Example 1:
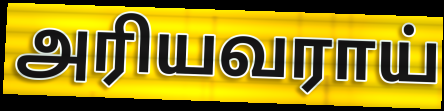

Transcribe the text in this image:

அரியவராய்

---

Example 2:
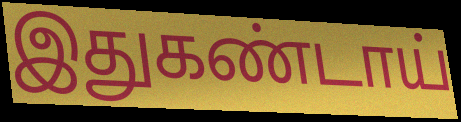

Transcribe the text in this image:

இதுகண்டாய்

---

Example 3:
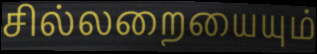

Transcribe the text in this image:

சில்லறையையும்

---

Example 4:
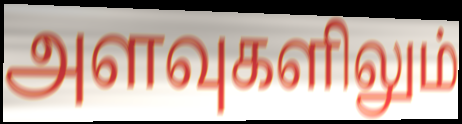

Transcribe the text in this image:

அளவுகளிலும்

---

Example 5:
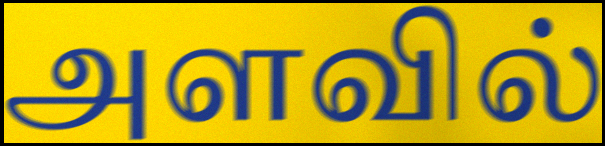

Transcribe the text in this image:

அளவில்